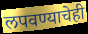
लपवण्याचेही